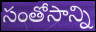
సంతోసాన్ని